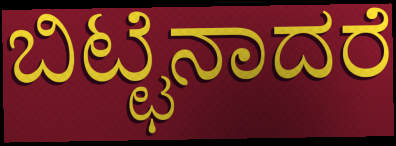
ಬಿಟ್ಟೆನಾದರೆ